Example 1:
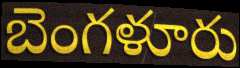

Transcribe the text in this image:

బెంగళూరు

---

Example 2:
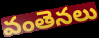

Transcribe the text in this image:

వంతెనలు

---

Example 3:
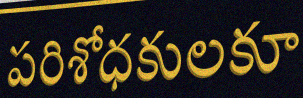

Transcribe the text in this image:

పరిశోధకులకూ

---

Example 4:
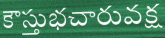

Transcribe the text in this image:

కౌస్తుభచారువక్ష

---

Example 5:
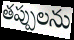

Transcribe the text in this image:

తప్పులను